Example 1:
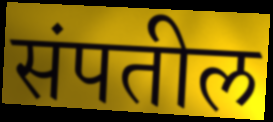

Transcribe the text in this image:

संपतील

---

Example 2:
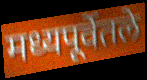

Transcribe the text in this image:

मध्यपूर्वेतले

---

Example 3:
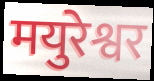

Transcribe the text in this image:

मयुरेश्वर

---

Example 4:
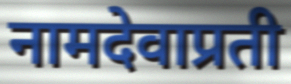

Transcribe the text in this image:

नामदेवाप्रती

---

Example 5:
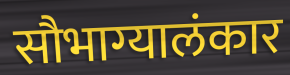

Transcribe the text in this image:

सौभाग्यालंकार